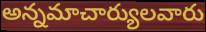
అన్నమాచార్యులవారు